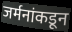
जर्मनांकडून